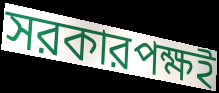
সরকারপক্ষই